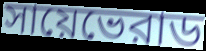
সায়েভেরাড